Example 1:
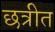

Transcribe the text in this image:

छत्रीत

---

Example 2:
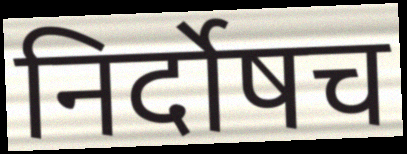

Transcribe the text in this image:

निर्दोषच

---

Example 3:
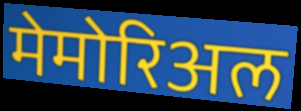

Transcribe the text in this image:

मेमोरिअल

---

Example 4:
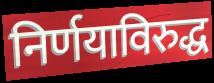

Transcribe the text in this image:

निर्णयाविरुद्ध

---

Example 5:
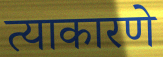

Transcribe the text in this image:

त्याकारणे